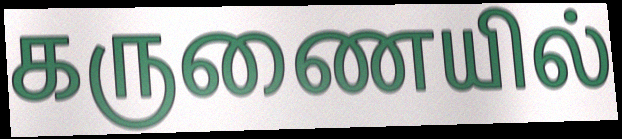
கருணையில்